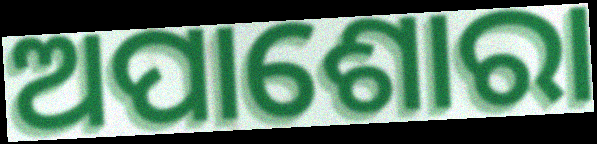
ଅପାଶୋରା